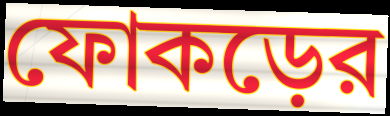
ফোকড়ের